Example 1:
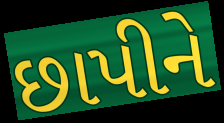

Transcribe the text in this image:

છાપીને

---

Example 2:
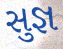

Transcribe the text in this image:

સુજ્ઞ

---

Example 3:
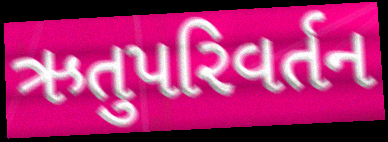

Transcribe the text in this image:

ઋતુપરિવર્તન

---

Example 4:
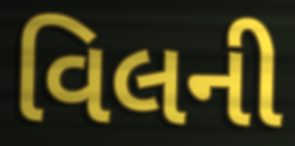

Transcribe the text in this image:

વિલની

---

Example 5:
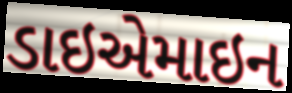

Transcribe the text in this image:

ડાઇએમાઇન